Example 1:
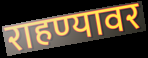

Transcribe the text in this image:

राहण्यावर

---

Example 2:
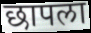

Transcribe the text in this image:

छापला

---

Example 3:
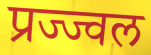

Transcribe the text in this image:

प्रज्ज्वल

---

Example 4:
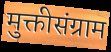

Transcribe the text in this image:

मुक्तीसंग्राम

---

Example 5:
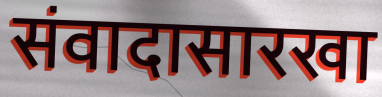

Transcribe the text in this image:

संवादासारखा